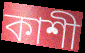
কাশী